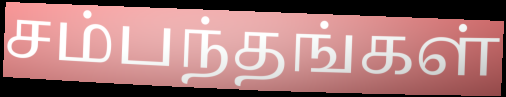
சம்பந்தங்கள்